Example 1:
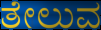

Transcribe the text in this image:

ತೇಲುವ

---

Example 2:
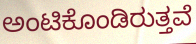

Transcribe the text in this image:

ಅಂಟಿಕೊಂಡಿರುತ್ತವೆ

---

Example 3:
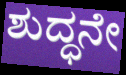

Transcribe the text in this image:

ಶುದ್ಧನೇ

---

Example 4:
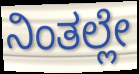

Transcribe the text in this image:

ನಿಂತಲ್ಲೇ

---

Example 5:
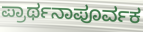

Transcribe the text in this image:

ಪ್ರಾರ್ಥನಾಪೂರ್ವಕ